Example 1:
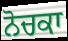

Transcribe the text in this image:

ਨੋਚਕਾ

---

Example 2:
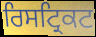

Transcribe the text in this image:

ਰਿਸਟ੍ਰਿਕਟ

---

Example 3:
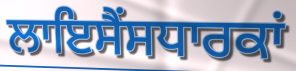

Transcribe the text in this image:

ਲਾਇਸੈਂਸਧਾਰਕਾਂ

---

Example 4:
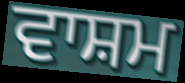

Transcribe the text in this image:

ਵਾਸ਼ਮ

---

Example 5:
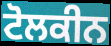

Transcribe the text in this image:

ਟੋਲਕੀਨ